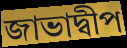
জাভাদ্বীপ